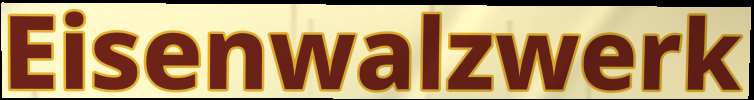
Eisenwalzwerk